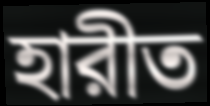
হারীত